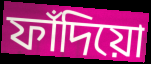
ফাঁদিয়ো